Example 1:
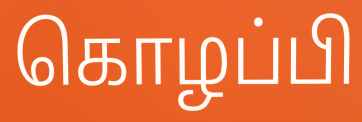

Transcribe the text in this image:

கொழப்பி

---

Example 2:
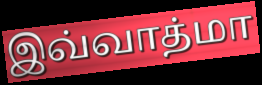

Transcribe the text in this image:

இவ்வாத்மா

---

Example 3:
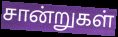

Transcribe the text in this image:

சான்றுகள்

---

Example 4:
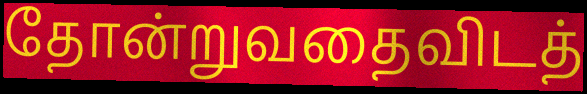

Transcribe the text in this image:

தோன்றுவதைவிடத்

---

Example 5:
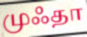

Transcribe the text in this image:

முஃதா